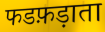
फडफ़ड़ाता